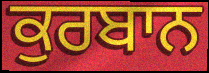
ਕੁਰਬਾਨ